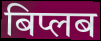
बिप्लब